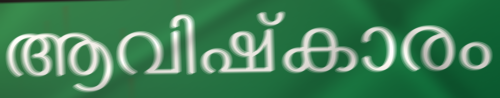
ആവിഷ്‌കാരം